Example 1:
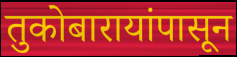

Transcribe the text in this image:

तुकोबारायांपासून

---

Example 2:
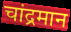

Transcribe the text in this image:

चांद्रमान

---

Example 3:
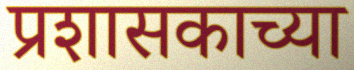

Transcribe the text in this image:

प्रशासकाच्या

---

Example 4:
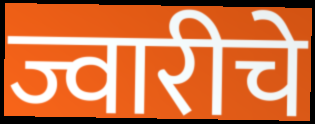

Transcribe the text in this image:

ज्वारीचे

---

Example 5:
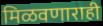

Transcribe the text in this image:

मिळवणाराही